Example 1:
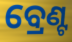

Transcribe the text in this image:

ବ୍ରେଣ୍ଟ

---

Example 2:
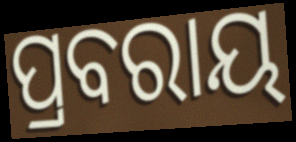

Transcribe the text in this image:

ପ୍ରବରାୟ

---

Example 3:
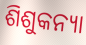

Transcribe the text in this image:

ଶିଶୁକନ୍ଯା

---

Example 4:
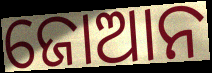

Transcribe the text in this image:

ଜୋଆନ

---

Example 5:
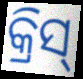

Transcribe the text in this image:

କ୍ରିସ୍